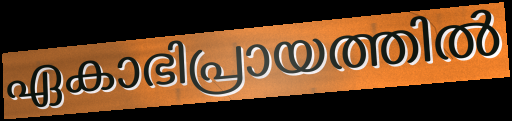
ഏകാഭിപ്രായത്തിൽ